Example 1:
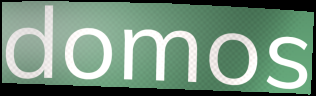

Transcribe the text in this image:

domos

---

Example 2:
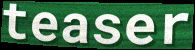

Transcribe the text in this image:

teaser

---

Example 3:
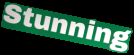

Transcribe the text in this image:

Stunning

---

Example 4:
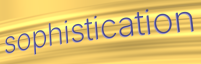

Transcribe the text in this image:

sophistication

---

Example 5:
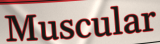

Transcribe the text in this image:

Muscular